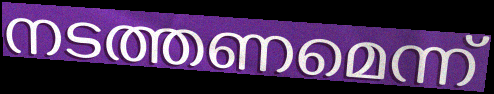
നടത്തണമെന്ന്